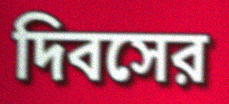
দিবসের